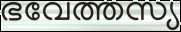
ഭവേത്തസ്യ